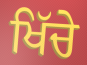
ਖਿੱਚੇ